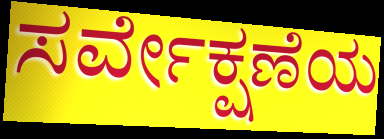
ಸರ್ವೇಕ್ಷಣೆಯ